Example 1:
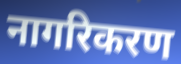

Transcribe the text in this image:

नागरिकरण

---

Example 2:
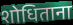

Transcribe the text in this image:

शोधिताना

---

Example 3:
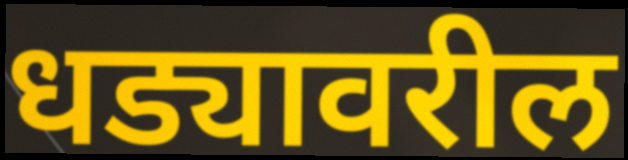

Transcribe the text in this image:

धड्यावरील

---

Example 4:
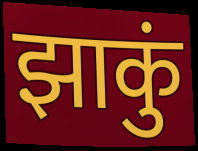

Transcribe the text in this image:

झाकुं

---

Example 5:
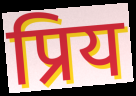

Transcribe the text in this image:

प्रिय